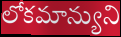
లోకమాన్యుని